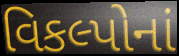
વિકલ્પોનાં